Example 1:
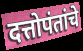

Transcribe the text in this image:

दत्तोपंतांचे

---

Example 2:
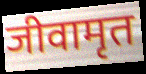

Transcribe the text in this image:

जीवामृत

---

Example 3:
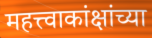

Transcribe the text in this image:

महत्त्वाकांक्षांच्या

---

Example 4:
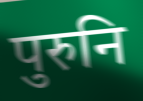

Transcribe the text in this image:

पुरुनि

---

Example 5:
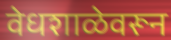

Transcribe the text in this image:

वेधशाळेवरून